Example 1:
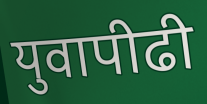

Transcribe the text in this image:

युवापीढी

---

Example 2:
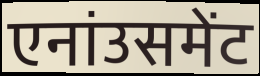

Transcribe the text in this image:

एनांउसमेंट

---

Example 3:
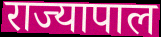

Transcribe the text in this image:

राज्यापाल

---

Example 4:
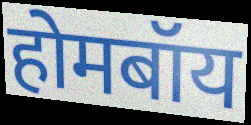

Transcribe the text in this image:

होमबॉय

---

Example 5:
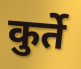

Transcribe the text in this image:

कुर्ते